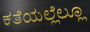
ಕತೆಯಲ್ಲೆಲ್ಲೂ